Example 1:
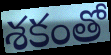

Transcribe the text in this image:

శకంతో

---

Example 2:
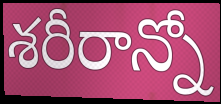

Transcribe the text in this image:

శరీరాన్నో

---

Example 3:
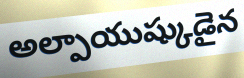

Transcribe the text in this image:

అల్పాయుష్కుడైన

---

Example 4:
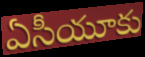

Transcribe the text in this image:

ఏసీయూకు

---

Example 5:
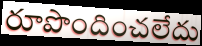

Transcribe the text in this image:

రూపొందించలేదు